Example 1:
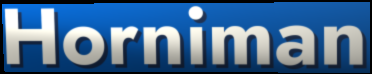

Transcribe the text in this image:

Horniman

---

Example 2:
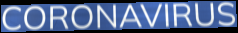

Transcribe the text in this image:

CORONAVIRUS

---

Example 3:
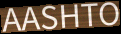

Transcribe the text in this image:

AASHTO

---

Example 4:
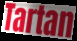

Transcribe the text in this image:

Tartan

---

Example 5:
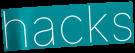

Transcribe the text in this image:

hacks